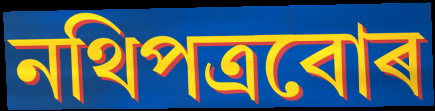
নথিপত্ৰবোৰ